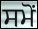
ਸਮੋਂ